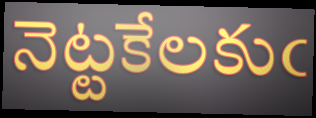
నెట్టకేలకుఁ